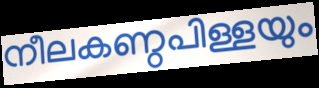
നീലകണ്ഠപിള്ളയും